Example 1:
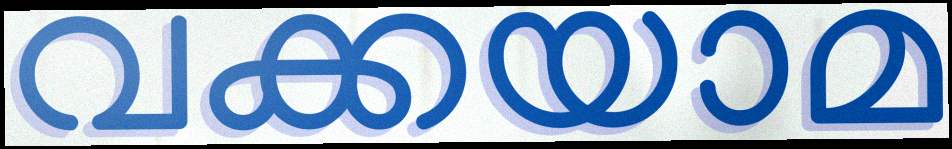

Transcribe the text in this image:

വക്കയാമ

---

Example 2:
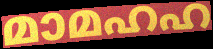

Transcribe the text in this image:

മാമഹഹ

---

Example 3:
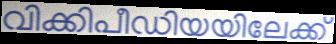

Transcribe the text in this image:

വിക്കിപീഡിയയിലേക്ക്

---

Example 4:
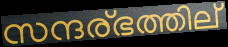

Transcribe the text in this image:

സന്ദര്ഭത്തില്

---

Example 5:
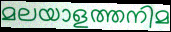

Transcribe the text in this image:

മലയാളത്തനിമ